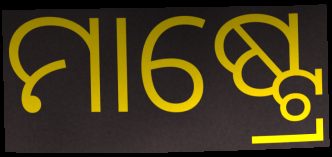
ମାଷ୍ଟ୍ରେ